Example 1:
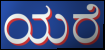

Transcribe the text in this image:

ಯರೆ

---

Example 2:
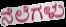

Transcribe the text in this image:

ನೆಲೆಗಳು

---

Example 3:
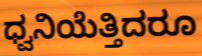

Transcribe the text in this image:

ಧ್ವನಿಯೆತ್ತಿದರೂ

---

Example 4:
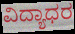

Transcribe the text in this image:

ವಿದ್ಯಾಧರ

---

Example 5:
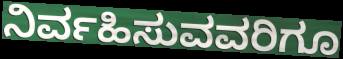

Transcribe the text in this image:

ನಿರ್ವಹಿಸುವವರಿಗೂ